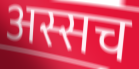
अस्सच